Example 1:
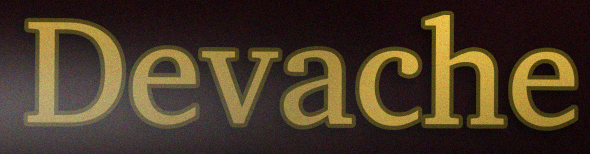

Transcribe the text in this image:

Devache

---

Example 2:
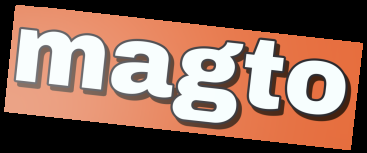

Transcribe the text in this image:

magto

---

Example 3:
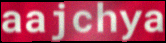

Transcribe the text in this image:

aajchya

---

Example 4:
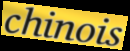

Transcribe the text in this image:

chinois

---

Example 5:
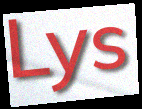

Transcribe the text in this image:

Lys